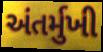
અંતર્મુખી